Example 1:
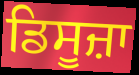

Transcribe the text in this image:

ਡਿਸੂਜ਼ਾ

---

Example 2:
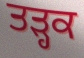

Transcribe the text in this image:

ਤੜ੍ਹਕ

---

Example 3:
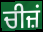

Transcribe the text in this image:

ਚੀਜ਼ਂ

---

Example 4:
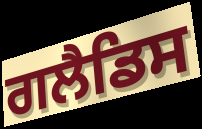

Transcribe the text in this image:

ਗਲੈਡਿਸ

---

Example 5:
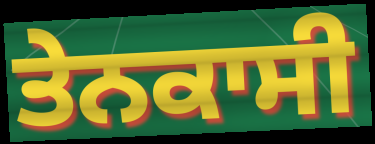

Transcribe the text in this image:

ਤੇਨਕਾਸੀ